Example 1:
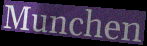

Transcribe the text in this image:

Munchen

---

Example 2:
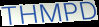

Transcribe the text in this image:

THMPD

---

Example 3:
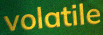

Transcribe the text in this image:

volatile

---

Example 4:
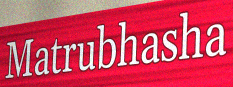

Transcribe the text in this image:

Matrubhasha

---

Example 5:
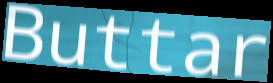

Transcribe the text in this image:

Buttar